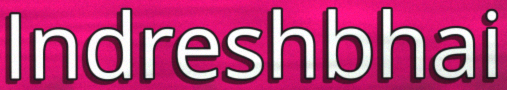
Indreshbhai